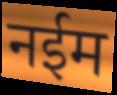
नईम